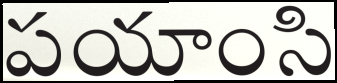
పయాంసి